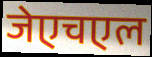
जेएचएल